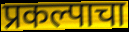
प्रकल्पाचा